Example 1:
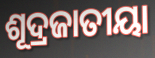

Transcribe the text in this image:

ଶୂଦ୍ରଜାତୀୟା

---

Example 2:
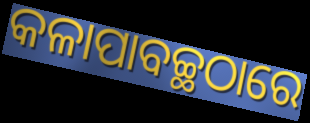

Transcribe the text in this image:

କଳାପାବଚ୍ଛଠାରେ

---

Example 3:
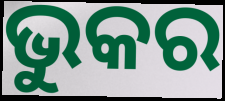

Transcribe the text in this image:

ଭୁକର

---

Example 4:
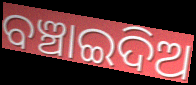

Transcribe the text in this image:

ବଞ୍ଚାଇଦିଅ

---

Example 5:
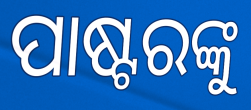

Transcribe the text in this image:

ପାଷ୍ଟରଙ୍କୁ